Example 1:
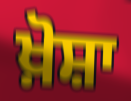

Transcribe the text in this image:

ਖ਼ੋਸ਼ਾ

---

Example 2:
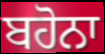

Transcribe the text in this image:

ਬਹੋਨਾ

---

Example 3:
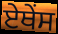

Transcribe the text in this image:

ਏਥੇਂਸ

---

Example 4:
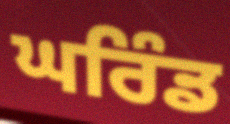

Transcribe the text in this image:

ਘਰਿੰਡ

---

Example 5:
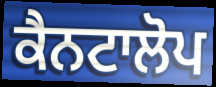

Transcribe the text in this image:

ਕੈਨਟਾਲੋਪ